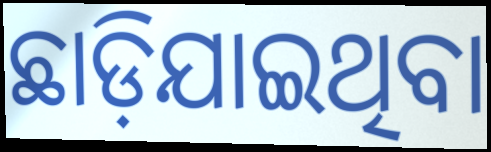
ଛାଡ଼ିଯାଇଥିବା